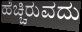
ಹೆಚ್ಚಿರುವದು